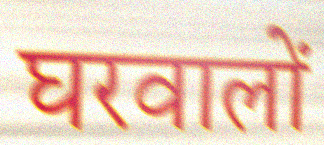
घरवालों